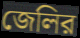
জেলির